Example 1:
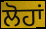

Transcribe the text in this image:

ਲੋਹਾਂ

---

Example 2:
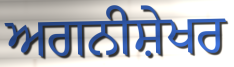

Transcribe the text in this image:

ਅਗਨੀਸ਼ੇਖਰ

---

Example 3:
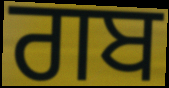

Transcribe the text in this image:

ਗਬ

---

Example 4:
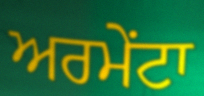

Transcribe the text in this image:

ਅਰਮੇਂਟਾ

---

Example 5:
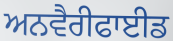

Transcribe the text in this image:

ਅਨਵੈਰੀਫਾਈਡ